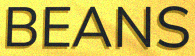
BEANS